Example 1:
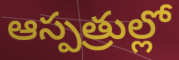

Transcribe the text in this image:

ఆస్పత్రుల్లో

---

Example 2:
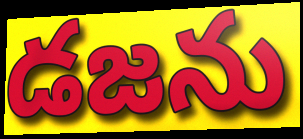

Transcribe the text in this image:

డజను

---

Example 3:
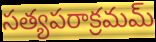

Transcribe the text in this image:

సత్యపరాక్రమమ్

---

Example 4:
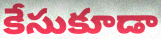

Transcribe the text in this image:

కేసుకూడా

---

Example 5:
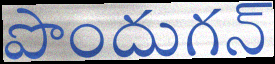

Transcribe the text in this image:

పొందుగన్